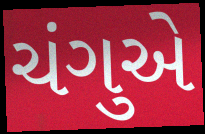
ચંગુએ